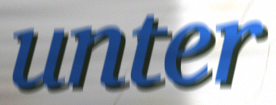
unter